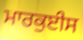
ਮਾਰਕੁਈਸ